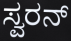
ಸ್ವರನ್